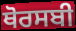
ਥੋਰਸਬੀ